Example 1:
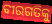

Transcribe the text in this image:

ବୀରଗତିକୁ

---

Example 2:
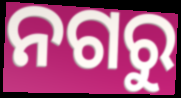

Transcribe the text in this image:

ନଗରୁ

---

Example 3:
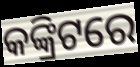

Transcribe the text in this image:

କଙ୍କ୍ରିଟରେ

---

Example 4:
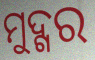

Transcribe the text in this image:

ମୁଦ୍ଗର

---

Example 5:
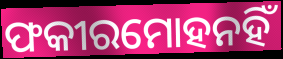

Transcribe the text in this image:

ଫକୀରମୋହନହିଁ